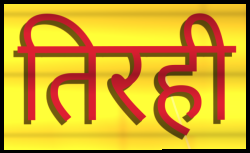
तिरही